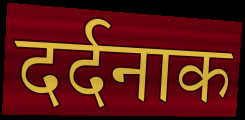
दर्दनाक